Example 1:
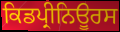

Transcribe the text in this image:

ਕਿਡਪ੍ਰੀਨਿਊਰਸ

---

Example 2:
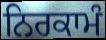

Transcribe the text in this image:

ਨਿਰਕਾਮੰ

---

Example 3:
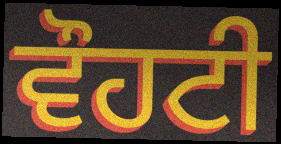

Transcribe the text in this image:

ਵੌਹਟੀ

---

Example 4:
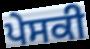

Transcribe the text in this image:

ਪੇਸਕੀ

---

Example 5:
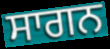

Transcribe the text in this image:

ਸਾਗਨ